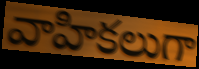
వాహికలుగా